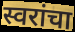
स्वरांचा